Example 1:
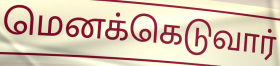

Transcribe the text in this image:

மெனக்கெடுவார்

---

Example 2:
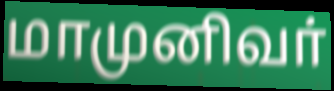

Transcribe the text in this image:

மாமுனிவர்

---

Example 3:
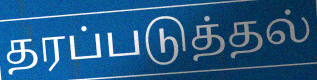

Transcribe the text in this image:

தரப்படுத்தல்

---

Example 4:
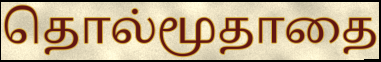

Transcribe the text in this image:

தொல்மூதாதை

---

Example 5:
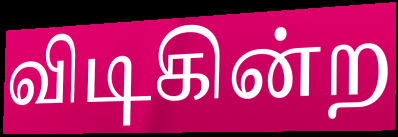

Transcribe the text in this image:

விடிகின்ற